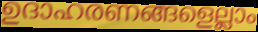
ഉദാഹരണങ്ങളെല്ലാം